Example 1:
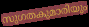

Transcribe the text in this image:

സുഗതകുമാരിയും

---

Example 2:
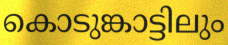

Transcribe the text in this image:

കൊടുങ്കാട്ടിലും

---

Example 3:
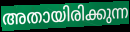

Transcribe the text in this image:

അതായിരിക്കുന്ന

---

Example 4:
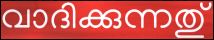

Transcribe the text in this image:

വാദിക്കുന്നതു്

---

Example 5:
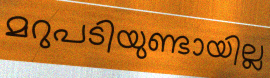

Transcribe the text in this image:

മറുപടിയുണ്ടായില്ല